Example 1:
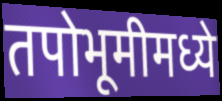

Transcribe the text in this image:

तपोभूमीमध्ये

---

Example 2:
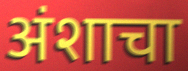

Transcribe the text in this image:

अंशाचा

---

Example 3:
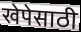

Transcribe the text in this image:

खेपेसाठी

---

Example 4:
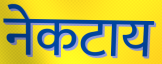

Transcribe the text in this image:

नेकटाय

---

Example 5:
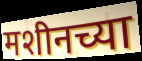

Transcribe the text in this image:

मशीनच्या